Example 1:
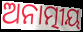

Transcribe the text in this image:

ଅନାତ୍ମୀୟ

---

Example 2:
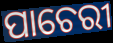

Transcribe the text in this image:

ପାଚେରୀ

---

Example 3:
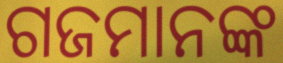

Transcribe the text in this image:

ଗଜମାନଙ୍କ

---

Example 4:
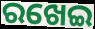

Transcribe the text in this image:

ରଖେଇ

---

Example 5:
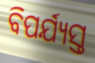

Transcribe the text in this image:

ବିପର୍ଯ୍ୟସ୍ତ